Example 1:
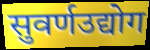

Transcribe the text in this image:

सुवर्णउद्योग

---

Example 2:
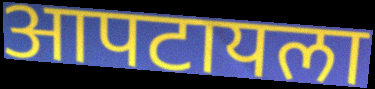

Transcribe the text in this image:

आपटायला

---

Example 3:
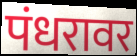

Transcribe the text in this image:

पंधरावर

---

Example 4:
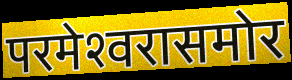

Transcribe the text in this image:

परमेश्वरासमोर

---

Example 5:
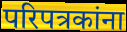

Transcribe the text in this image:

परिपत्रकांना